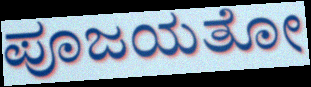
ಪೂಜಯತೋ